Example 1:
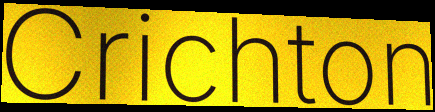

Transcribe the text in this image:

Crichton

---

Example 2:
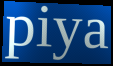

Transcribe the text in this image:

piya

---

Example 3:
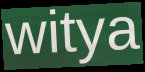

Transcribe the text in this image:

witya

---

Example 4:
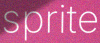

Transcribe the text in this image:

sprite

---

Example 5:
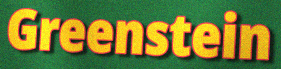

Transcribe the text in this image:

Greenstein